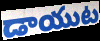
డాయుట